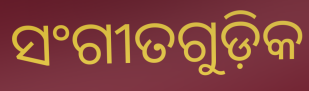
ସଂଗୀତଗୁଡ଼ିକ